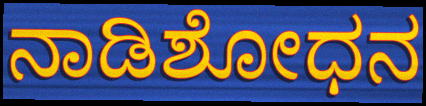
ನಾಡಿಶೋಧನ